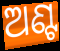
ଅଣ୍ଟ